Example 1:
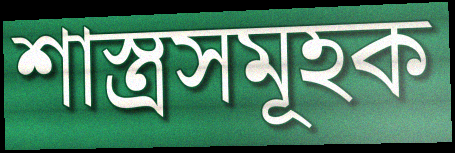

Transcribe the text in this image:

শাস্ত্ৰসমূহক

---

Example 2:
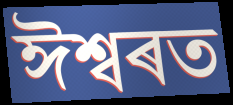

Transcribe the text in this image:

ঈশ্বৰত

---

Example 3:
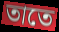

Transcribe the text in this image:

তাতে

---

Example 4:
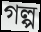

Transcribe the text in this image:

গল্প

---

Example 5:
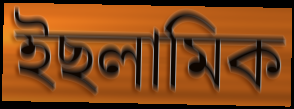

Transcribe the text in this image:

ইছলামিক